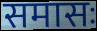
समासः